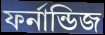
ফর্নান্ডিজ